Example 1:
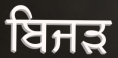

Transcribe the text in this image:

ਬਿਜੜ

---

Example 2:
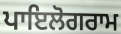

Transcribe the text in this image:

ਪਾਇਲੋਗਰਾਮ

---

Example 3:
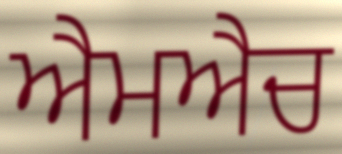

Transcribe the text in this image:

ਐਮਐਚ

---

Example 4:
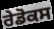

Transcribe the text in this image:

ਰੇਡੋਕਸ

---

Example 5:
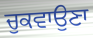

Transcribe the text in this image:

ਚੁਕਵਾਉਣਾ